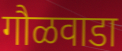
गौळवाडा